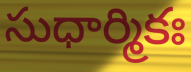
సుధార్మికః